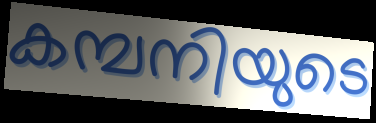
കമ്പനിയുടെ